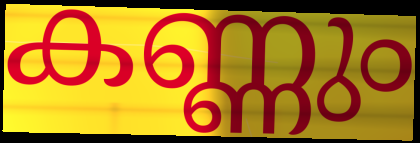
കണ്ണും